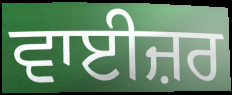
ਵਾਈਜ਼ਰ